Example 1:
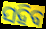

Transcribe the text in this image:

ସହିବ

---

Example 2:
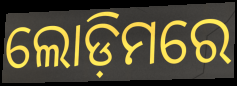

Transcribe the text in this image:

ଲୋଡ଼ିମରେ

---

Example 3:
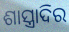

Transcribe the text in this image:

ଶାସ୍ତ୍ରାଦିର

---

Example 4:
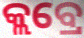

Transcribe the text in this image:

କ୍ଲବ୍ରେ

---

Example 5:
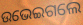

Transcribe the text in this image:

ଉଭେଇଗଲେ